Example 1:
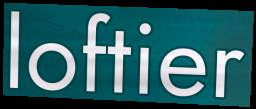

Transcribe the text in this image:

loftier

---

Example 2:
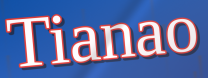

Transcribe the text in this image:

Tianao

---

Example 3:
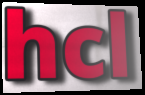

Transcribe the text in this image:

hcl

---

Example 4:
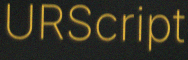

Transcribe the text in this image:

URScript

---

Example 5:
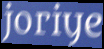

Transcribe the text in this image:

joriye